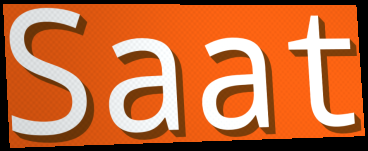
Saat